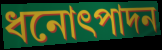
ধনোৎপাদন